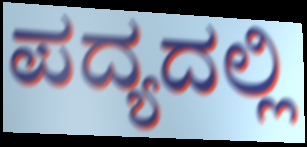
ಪದ್ಯದಲ್ಲಿ